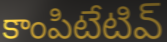
కాంపిటేటివ్